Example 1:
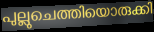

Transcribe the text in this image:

പുല്ലുചെത്തിയൊരുക്കി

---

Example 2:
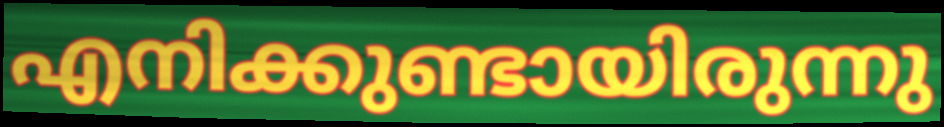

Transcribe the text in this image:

എനിക്കുണ്ടായിരുന്നു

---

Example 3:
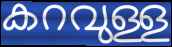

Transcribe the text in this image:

കറവുള്ള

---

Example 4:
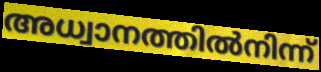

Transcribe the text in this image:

അധ്വാനത്തിൽനിന്ന്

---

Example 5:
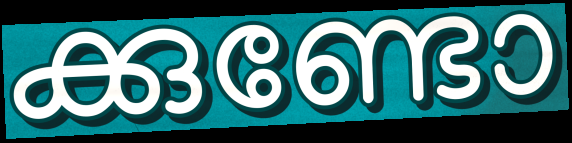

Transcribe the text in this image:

ക്കുണ്ടോ